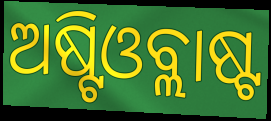
ଅଷ୍ଟିଓବ୍ଲାଷ୍ଟ